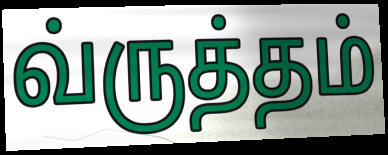
வ்ருத்தம்